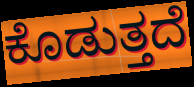
ಕೊಡುತ್ತದೆ